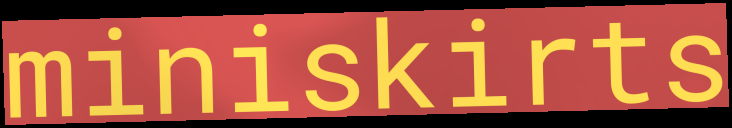
miniskirts